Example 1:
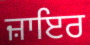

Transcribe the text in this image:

ਜ਼ਾਇਰ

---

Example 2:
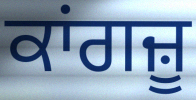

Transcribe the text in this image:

ਕਾਂਗਜ਼ੂ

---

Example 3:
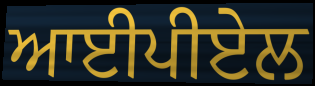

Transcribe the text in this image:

ਆਈਪੀਏਲ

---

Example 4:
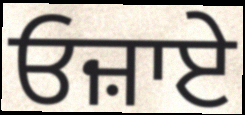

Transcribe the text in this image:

ਓਜ਼ਾਏ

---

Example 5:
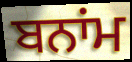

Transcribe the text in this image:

ਬਨਾਂਮ